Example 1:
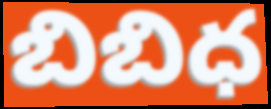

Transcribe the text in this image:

బిబిధ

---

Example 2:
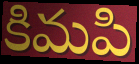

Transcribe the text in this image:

కిమపి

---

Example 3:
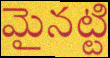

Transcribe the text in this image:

మైనట్టి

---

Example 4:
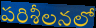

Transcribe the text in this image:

పరిశీలనలో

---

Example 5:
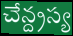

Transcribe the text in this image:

చేన్ద్రస్య